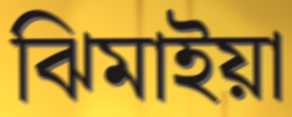
ঝিমাইয়া